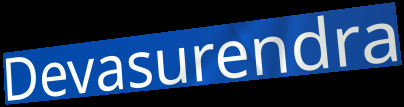
Devasurendra